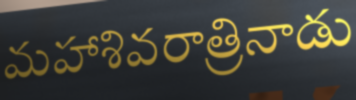
మహాశివరాత్రినాడు